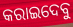
କରାଇଦେବୁ